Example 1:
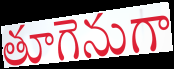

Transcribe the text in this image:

తూగెనుగా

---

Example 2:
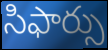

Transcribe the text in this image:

సిఫార్సు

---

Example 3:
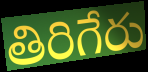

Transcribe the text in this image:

తిరిగేరు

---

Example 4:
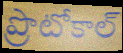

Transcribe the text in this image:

ప్రొటోకాల్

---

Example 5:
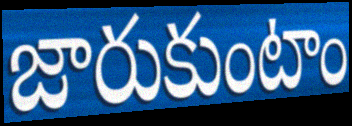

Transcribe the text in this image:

జారుకుంటాం